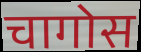
चागोस